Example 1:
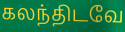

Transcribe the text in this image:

கலந்திடவே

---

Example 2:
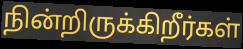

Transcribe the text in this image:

நின்றிருக்கிறீர்கள்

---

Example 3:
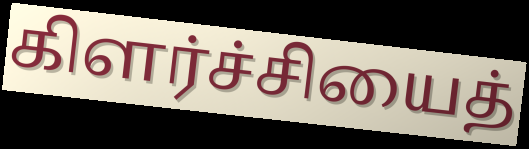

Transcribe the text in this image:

கிளர்ச்சியைத்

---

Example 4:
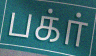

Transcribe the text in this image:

பக்ர்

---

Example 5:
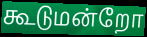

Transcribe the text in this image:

கூடுமன்றோ